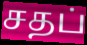
சதப்